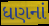
ધણનાં